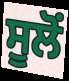
ਸੂਲੋਂ